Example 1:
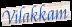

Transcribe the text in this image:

Vilakkam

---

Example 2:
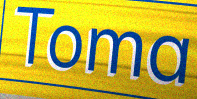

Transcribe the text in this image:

Toma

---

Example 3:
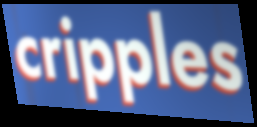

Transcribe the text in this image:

cripples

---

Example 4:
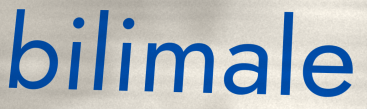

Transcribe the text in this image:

bilimale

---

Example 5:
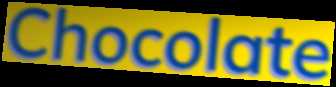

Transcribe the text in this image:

Chocolate